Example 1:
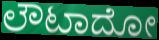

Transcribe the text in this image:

ಲೌಟಾದೋ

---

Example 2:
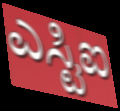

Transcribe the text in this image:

ಎಸ್ಟಿಐ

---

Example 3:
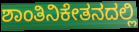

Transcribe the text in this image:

ಶಾಂತಿನಿಕೇತನದಲ್ಲಿ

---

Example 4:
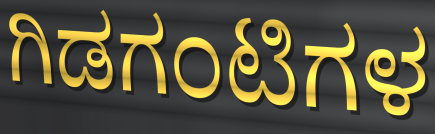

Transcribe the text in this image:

ಗಿಡಗಂಟಿಗಳ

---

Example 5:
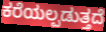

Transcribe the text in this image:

ಕರೆಯಲ್ಪಡುತ್ತದೆ